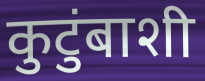
कुटुंबाशी